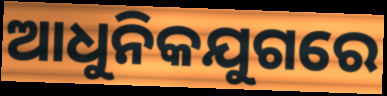
ଆଧୁନିକଯୁଗରେ